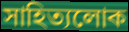
সাহিত্যলোক